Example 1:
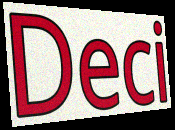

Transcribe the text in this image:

Deci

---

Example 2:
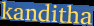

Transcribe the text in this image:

kanditha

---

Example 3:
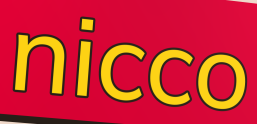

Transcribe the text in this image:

nicco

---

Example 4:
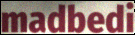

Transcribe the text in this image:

madbedi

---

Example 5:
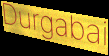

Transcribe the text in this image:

Durgabai